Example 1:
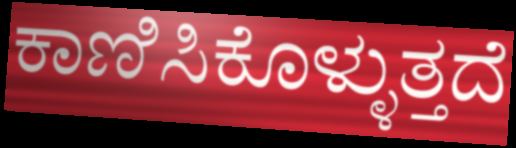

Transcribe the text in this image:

ಕಾಣಿಸಿಕೊಳ್ಳುತ್ತದೆ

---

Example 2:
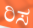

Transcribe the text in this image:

ರಿಸ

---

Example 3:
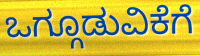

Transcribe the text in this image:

ಒಗ್ಗೂಡುವಿಕೆಗೆ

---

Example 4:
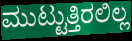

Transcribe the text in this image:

ಮುಟ್ಟುತ್ತಿರಲಿಲ್ಲ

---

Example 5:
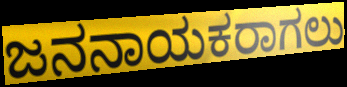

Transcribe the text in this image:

ಜನನಾಯಕರಾಗಲು